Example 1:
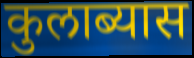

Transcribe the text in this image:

कुलाब्यास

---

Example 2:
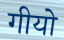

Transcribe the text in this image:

गीयो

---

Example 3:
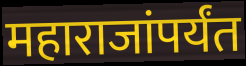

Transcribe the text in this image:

महाराजांपर्यंत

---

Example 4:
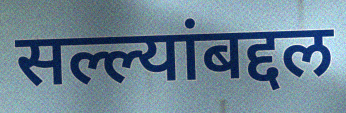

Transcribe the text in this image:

सल्ल्यांबद्दल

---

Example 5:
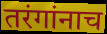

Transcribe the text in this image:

तरंगांनाच